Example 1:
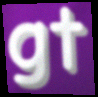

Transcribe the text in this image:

gt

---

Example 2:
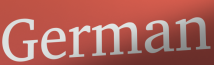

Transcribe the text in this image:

German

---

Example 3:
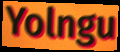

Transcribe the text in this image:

Yolngu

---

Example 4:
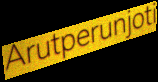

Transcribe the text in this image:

Arutperunjoti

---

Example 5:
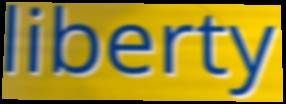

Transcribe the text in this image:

liberty